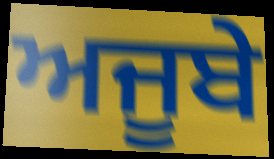
ਅਜੂਬੇ